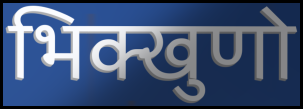
भिक्खुणो